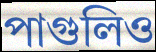
পাগুলিও